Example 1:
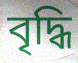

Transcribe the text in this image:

বৃদ্ধি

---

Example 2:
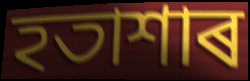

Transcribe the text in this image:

হতাশাৰ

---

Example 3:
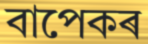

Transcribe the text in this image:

বাপেকৰ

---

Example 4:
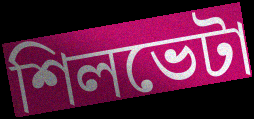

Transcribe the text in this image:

শিলভেটা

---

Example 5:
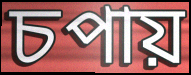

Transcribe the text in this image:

চপায়